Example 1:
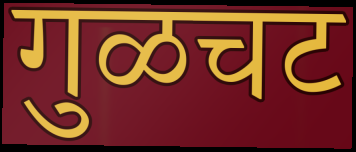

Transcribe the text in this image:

गुळचट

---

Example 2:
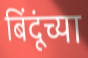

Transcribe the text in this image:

बिंदूंच्या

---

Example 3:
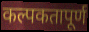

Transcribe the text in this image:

कल्पकतापूर्ण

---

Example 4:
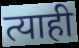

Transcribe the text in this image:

त्याही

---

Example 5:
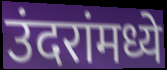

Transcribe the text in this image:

उंदरांमध्ये